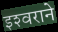
इश्वराने